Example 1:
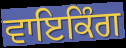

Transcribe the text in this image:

ਵਾਇਕਿੰਗ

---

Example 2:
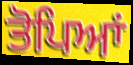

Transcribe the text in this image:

ਤੋਪਿਆਂ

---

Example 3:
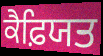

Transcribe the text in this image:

ਕੈਫ਼ਿਯਤ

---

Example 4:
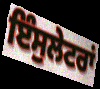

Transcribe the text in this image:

ਇੰਸੁਲੇਟਰਾਂ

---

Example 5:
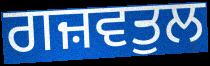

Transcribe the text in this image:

ਗਜ਼ਵਤੁਲ